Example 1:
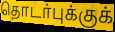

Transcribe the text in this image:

தொடர்புக்குக்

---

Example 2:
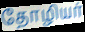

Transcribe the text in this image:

தோழியர்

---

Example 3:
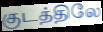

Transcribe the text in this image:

குடத்திலே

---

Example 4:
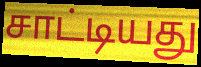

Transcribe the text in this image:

சாட்டியது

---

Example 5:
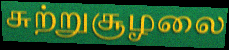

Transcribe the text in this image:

சுற்றுசூழலை